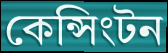
কেন্সিংটন